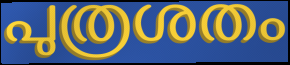
പുത്രശതം